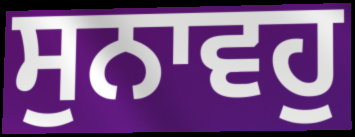
ਸੁਨਾਵਹੁ